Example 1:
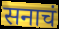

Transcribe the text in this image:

सनाचं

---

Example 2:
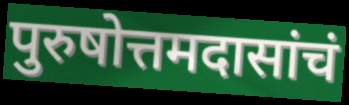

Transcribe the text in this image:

पुरुषोत्तमदासांचं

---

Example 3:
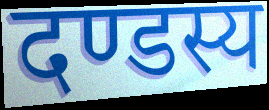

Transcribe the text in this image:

दण्डस्य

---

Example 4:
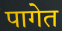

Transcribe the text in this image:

पागेत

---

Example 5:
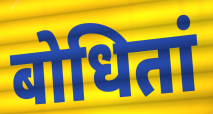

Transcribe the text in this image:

बोधितां